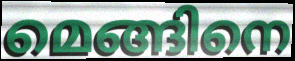
മെങ്ങിനെ